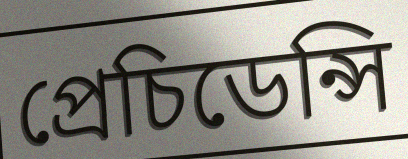
প্ৰেচিডেন্সি